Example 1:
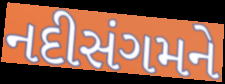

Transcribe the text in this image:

નદીસંગમને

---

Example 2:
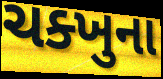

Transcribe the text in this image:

ચક્ખુના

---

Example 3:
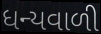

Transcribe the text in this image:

ધન્યવાળી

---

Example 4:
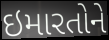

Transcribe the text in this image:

ઇમારતોને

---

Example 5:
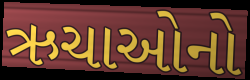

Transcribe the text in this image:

ઋચાઓનો